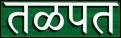
तळपत